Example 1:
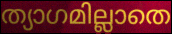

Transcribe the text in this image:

ത്യാഗമില്ലാതെ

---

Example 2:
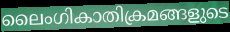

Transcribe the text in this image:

ലൈംഗികാതിക്രമങ്ങളുടെ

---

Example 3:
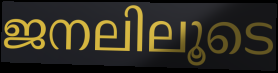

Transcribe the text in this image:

ജനലിലൂടെ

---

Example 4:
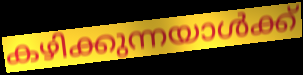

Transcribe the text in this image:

കഴിക്കുന്നയാൾക്ക്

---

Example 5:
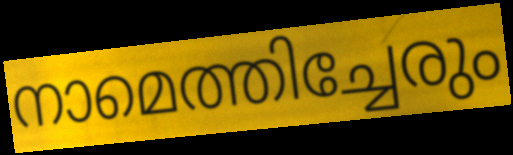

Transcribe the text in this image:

നാമെത്തിച്ചേരും